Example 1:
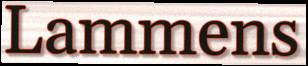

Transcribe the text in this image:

Lammens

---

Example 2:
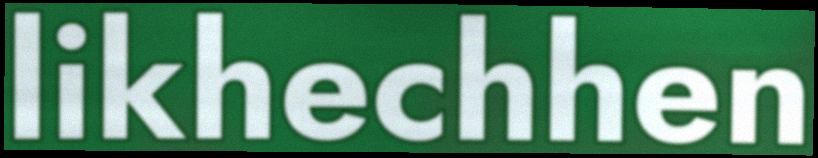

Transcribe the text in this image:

likhechhen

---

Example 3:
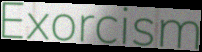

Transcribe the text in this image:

Exorcism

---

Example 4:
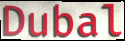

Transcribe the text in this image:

Dubal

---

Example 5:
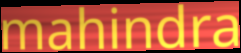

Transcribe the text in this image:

mahindra